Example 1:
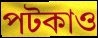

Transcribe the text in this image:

পটকাও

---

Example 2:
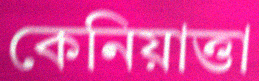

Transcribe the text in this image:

কেনিয়াত্তা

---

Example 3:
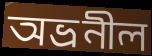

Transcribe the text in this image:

অভ্রনীল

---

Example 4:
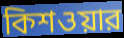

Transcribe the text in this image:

কিশওয়ার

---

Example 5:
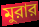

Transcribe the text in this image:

মুরার